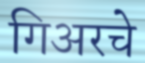
गिअरचे